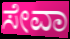
ಸೇವಾ